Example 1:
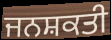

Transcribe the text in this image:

ਜਨਸ਼ਕਤੀ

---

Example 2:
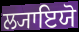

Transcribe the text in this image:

ਲ੍ਯਾਇਯੋ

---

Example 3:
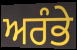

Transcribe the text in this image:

ਅਰੰਭੇ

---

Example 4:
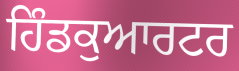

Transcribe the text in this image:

ਹਿੰਡਕੁਆਰਟਰ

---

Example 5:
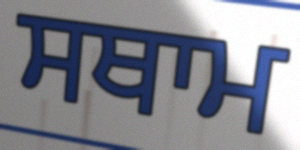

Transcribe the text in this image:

ਸਥਾਮ